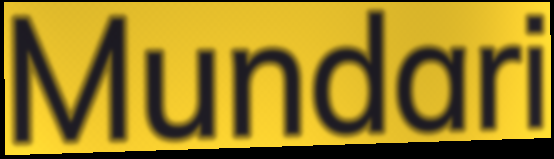
Mundari